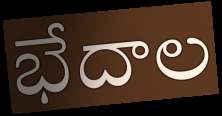
భేదాల